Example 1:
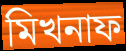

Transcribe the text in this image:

মিখনাফ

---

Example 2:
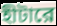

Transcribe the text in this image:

হীটারে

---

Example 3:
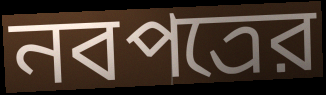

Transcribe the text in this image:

নবপত্রের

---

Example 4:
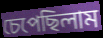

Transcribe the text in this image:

চেপেছিলাম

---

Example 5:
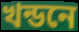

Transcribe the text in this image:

খন্ডনে